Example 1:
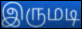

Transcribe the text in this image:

இருமடி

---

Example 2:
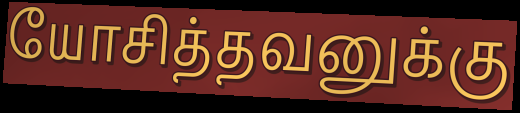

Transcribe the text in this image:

யோசித்தவனுக்கு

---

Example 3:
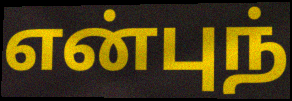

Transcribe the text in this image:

என்புந்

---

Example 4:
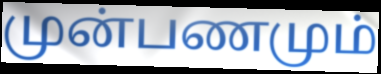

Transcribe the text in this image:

முன்பணமும்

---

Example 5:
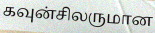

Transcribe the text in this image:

கவுன்சிலருமான